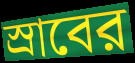
স্রাবের